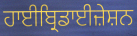
ਹਾਈਬ੍ਰਿਡਾਈਜ਼ੇਸ਼ਨ